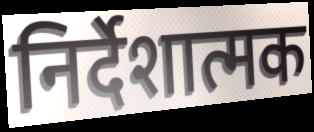
निर्देशात्मक